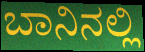
ಬಾನಿನಲ್ಲಿ